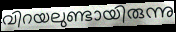
വിറയലുണ്ടായിരുന്നു